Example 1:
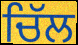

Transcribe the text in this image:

ਚਿੱਲ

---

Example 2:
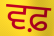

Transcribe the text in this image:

ਵਫ਼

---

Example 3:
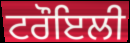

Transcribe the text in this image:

ਟਰੌਇਲੀ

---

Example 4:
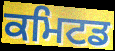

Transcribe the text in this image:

ਕਮਿਟਡ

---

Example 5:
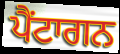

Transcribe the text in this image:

ਪੈਂਟਾਗਨ